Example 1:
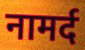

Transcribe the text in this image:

नामर्द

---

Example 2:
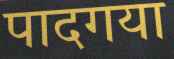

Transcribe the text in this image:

पादगया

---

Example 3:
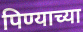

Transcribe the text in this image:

पिण्याच्या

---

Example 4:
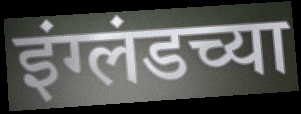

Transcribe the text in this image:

इंग्‍लंडच्या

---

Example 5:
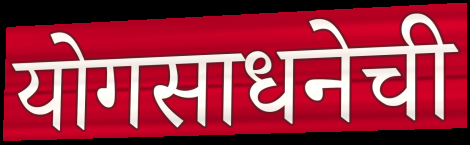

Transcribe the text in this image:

योगसाधनेची